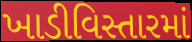
ખાડીવિસ્તારમાં